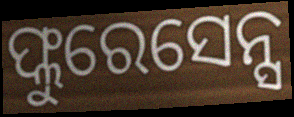
ଫ୍ଲୁରେସେନ୍ସ